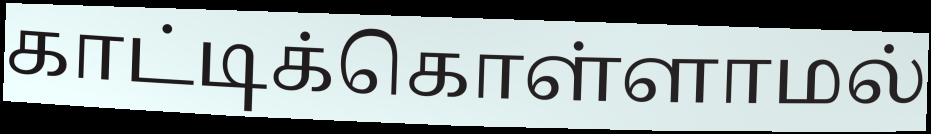
காட்டிக்கொள்ளாமல்